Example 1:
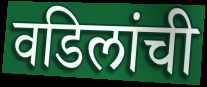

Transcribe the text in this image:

वडिलांची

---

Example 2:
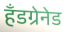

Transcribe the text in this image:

हॅंडग्रेनेड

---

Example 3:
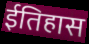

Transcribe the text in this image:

ईतिहास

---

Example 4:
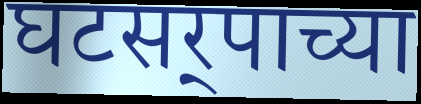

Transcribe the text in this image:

घटसर्पाच्या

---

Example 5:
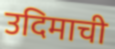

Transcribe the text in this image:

उदिमाची